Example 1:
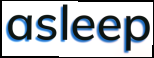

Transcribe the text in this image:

asleep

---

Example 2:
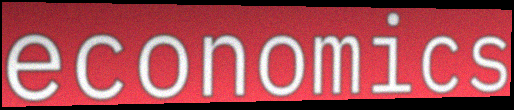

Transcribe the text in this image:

economics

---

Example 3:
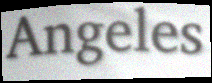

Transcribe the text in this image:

Angeles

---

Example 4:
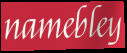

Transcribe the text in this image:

namebley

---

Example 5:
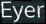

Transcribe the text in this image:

Eyer